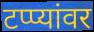
टप्प्यांवर